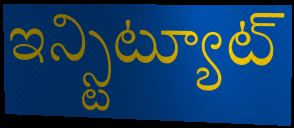
ఇన్స్టిట్యూట్